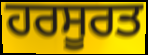
ਹਰਸੂਰਤ